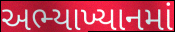
અભ્યાખ્યાનમાં